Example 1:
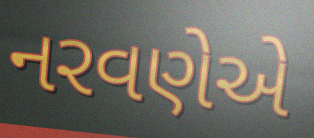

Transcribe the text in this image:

નરવણેએ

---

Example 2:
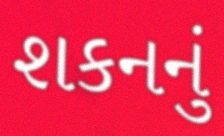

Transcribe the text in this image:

શકનનું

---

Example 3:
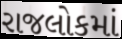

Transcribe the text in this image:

રાજલોકમાં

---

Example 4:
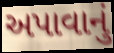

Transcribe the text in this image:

અપાવાનું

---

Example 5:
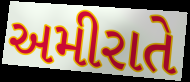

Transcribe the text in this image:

અમીરાતે